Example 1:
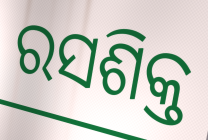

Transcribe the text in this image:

ରସଶିକ୍ତ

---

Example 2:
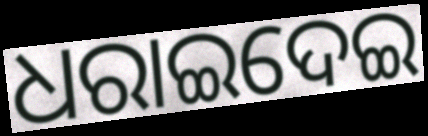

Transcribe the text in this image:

ଧରାଇଦେଇ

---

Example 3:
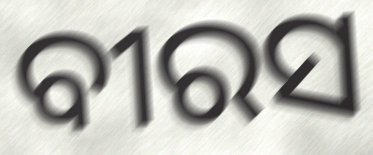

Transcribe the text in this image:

ବୀରସ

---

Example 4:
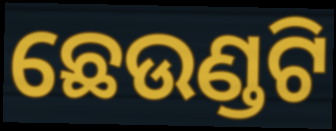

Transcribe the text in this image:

ଛେଉଣ୍ଡଟି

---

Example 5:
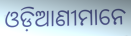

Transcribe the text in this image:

ଓଡ଼ିଆଣୀମାନେ